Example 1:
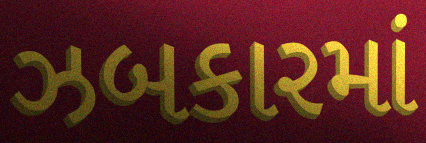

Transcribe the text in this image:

ઝબકારમાં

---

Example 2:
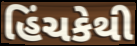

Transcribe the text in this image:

હિંચકેથી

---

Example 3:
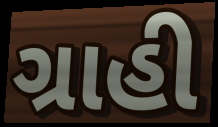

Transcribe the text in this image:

ગ્રાહી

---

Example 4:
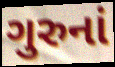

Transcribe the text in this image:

ગુરુનાં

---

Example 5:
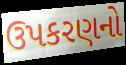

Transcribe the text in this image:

ઉપકરણનો